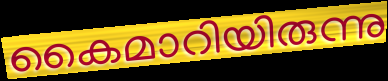
കൈമാറിയിരുന്നു